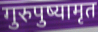
गुरुपुष्यामृत